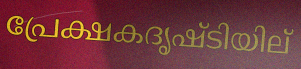
പ്രേക്ഷകദൃഷ്ടിയില്